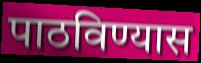
पाठविण्यास